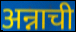
अन्नाची